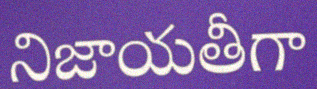
నిజాయతీగా